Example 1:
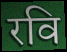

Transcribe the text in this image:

रवि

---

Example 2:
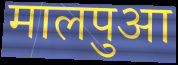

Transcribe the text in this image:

मालपुआ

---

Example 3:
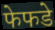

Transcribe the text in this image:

फेफडे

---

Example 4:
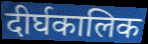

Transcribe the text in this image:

दीर्घकालिक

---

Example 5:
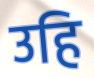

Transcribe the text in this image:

उहि